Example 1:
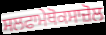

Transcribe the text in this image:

ਸਲਫਾਮੇਥੋਕਸਾਜ਼ੋਲ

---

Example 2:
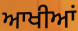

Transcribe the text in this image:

ਆਖੀਆਂ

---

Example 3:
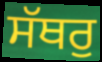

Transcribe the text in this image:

ਸੱਥਰੁ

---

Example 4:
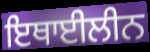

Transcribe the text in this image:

ਇਥਾਈਲੀਨ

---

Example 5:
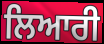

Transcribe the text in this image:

ਲਿਆਰੀ